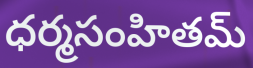
ధర్మసంహితమ్